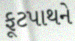
ફૂટપાથને